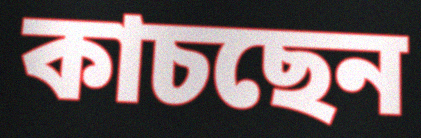
কাচছেন